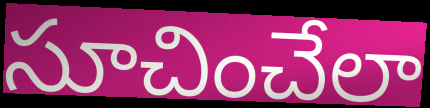
సూచించేలా